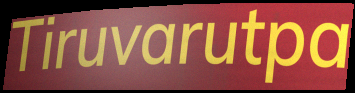
Tiruvarutpa